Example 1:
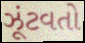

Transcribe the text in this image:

ઝૂંટવતો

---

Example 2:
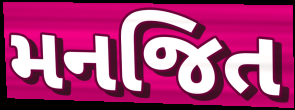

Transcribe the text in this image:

મનજિત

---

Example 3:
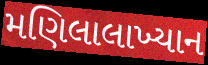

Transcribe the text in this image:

મણિલાલાખ્યાન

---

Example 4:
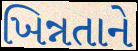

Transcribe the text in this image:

ખિન્નતાને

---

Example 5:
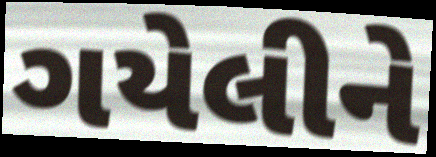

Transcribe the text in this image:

ગયેલીને